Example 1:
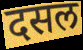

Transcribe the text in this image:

दसल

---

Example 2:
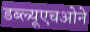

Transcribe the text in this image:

डब्ल्यूएचओने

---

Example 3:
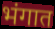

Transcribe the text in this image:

भंगात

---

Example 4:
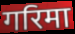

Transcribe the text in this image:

गरिमा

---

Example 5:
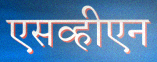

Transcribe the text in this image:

एसव्हीएन